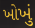
ખોખું